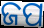
ଜପ